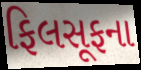
ફિલસૂફના